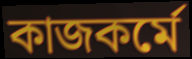
কাজকর্মে